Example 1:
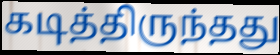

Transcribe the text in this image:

கடித்திருந்தது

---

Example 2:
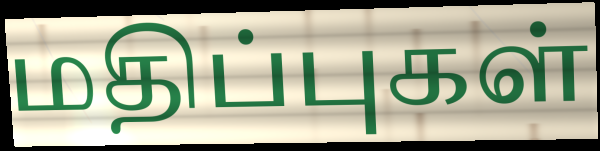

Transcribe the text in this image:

மதிப்புகள்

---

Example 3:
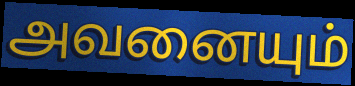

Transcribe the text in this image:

அவனையும்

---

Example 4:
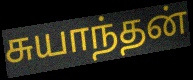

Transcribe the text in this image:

சுயாந்தன்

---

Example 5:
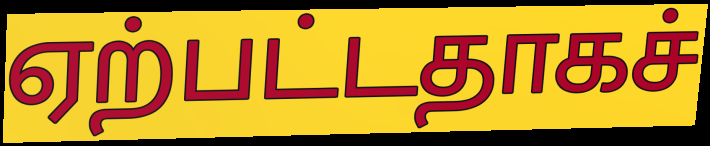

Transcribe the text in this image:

ஏற்பட்டதாகச்